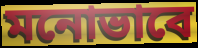
মনোভাবে